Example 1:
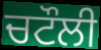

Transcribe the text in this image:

ਚਟੌਲੀ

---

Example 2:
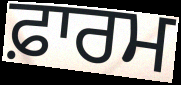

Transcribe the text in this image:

ਫ਼ਾਰਮ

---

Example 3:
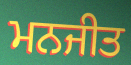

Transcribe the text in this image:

ਮਨਜੀਤ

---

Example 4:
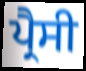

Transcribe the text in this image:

ਪ੍ਰੈਸੀ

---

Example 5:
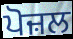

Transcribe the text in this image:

ਪੋਜ਼ਲ